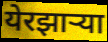
येरझार्‍या